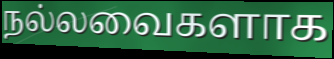
நல்லவைகளாக